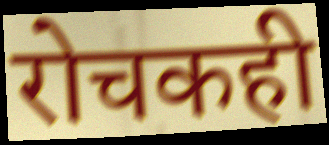
रोचकही